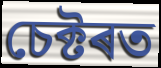
চেক্টৰত